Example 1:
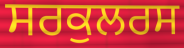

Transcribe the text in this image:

ਸਰਕੁਲਰਸ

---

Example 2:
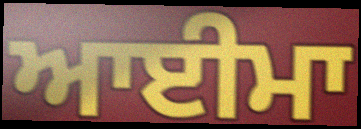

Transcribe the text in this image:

ਆਈਮਾ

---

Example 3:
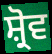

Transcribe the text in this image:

ਸ਼੍ਰੋਵ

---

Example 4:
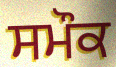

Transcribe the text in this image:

ਸਮੌਕ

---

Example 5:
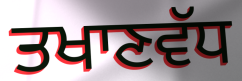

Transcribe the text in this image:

ਤਖਾਣਵੱਧ